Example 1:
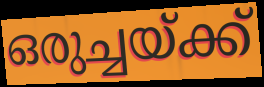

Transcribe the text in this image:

ഒരുച്ചയ്ക്ക്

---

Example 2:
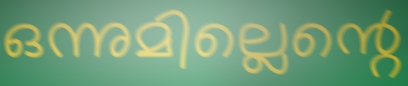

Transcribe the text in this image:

ഒന്നുമില്ലെന്റെ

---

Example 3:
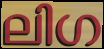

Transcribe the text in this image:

ലിഗ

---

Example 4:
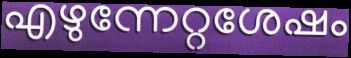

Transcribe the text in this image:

എഴുന്നേറ്റശേഷം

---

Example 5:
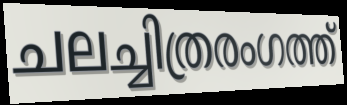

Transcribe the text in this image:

ചലച്ചിത്രരംഗത്ത്